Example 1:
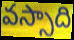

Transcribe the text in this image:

వస్సాది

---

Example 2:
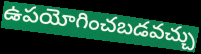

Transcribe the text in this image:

ఉపయోగించబడవచ్చు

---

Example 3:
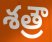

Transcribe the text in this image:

శత్రౌ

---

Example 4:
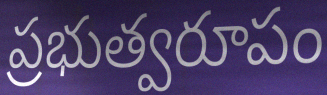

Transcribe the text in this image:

ప్రభుత్వరూపం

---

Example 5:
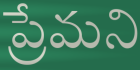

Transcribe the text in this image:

ప్రేమని